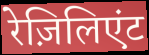
रेज़िलिएंट